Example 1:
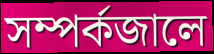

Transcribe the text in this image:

সম্পর্কজালে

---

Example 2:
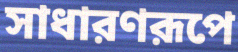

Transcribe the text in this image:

সাধারণরূপে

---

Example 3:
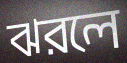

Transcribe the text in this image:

ঝরলে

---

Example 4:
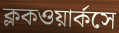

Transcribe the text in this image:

ক্লকওয়ার্কসে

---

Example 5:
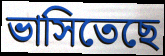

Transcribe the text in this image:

ভাসিতেছে